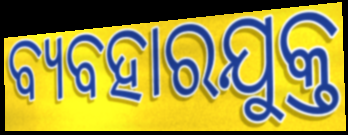
ବ୍ୟବହାରଯୁକ୍ତ